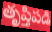
తృప్తిపడి